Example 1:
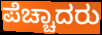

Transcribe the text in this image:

ಪೆಚ್ಚಾದರು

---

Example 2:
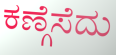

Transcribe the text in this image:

ಕಣ್ಗೆಸೆದು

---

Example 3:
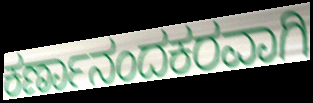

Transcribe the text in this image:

ಕರ್ಣಾನಂದಕರವಾಗಿ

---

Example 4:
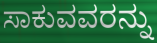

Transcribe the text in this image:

ಸಾಕುವವರನ್ನು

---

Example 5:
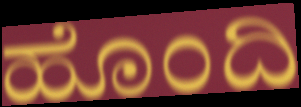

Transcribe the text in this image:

ಹೊಂದಿ